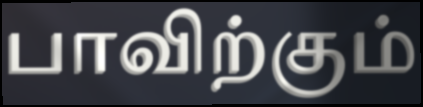
பாவிற்கும்